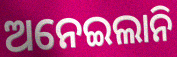
ଅନେଇଲାନି